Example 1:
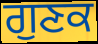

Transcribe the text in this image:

ਗੁਣਕ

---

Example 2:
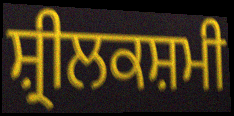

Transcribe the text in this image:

ਸ਼੍ਰੀਲਕਸ਼ਮੀ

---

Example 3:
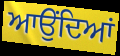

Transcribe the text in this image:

ਆਉਂਦਿਆਂ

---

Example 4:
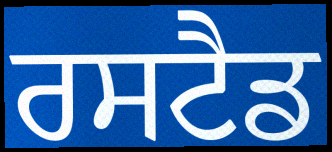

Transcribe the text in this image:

ਰਸਟੈਡ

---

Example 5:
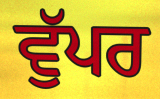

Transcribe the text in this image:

ਵੁੱਪਰ